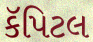
કૅપિટલ